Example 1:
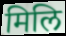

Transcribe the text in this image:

मिलि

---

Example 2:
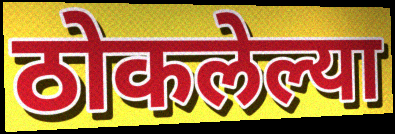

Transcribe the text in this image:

ठोकलेल्या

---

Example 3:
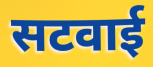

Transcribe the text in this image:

सटवाई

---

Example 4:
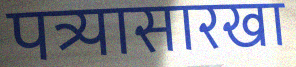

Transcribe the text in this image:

पत्र्यासारखा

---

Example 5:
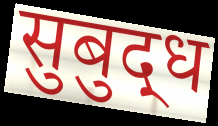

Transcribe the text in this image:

सुबुद्ध